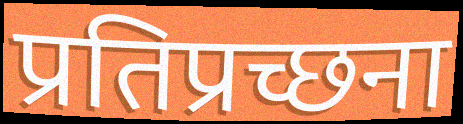
प्रतिप्रच्छना